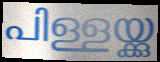
പിള്ളയ്ക്കു